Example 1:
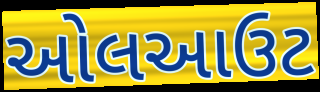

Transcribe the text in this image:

ઓલઆઉટ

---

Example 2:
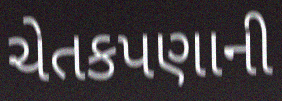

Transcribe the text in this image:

ચેતકપણાની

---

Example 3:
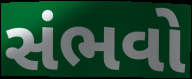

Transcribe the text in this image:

સંભવો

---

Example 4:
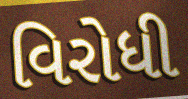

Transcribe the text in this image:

વિરોધી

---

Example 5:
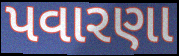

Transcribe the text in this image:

પવારણા